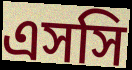
এসসি